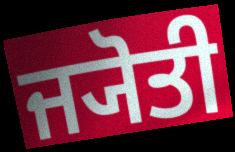
ਜ੍ਯੋਤੀ